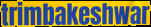
trimbakeshwar